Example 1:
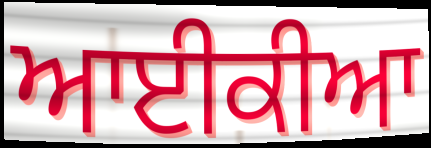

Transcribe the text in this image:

ਆਈਕੀਆ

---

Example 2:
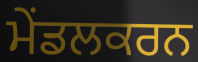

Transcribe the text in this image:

ਮੇਂਡਲਕਰਨ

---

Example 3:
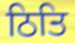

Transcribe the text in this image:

ਠਿਤਿ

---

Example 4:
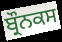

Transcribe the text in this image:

ਬ੍ਰੌਨਕਸ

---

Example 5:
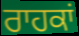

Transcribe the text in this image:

ਰਾਹਕਾਂ